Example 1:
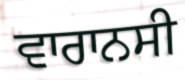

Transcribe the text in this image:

ਵਾਰਾਨਸੀ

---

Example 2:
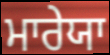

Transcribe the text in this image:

ਮਾਰੇਯਾ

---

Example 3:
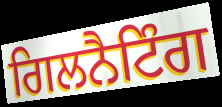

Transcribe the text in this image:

ਗਿਲਨੈਟਿੰਗ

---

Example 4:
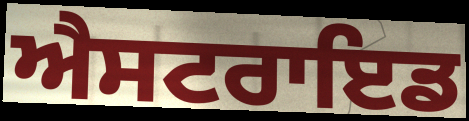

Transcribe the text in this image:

ਐਸਟਰਾਇਡ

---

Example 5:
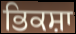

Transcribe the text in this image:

ਭਿਕਸ਼ਾ